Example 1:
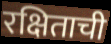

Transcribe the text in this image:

रक्षिताची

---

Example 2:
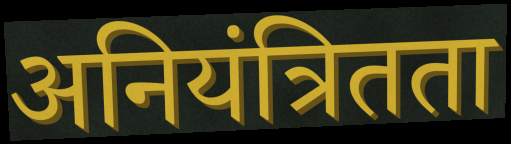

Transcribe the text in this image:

अनियंत्रितता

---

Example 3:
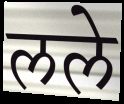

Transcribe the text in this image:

लले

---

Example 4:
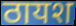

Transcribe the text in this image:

ठायश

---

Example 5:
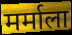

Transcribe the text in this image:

मर्माला